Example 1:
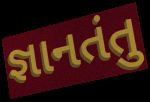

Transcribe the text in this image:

જ્ઞાનતંતુ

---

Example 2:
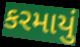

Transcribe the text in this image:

કરમાયું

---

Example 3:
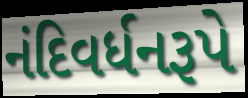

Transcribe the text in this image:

નંદિવર્ધનરૂપે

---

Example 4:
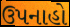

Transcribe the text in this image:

ઉપનાહો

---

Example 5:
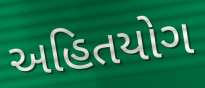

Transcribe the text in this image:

અહિતયોગ